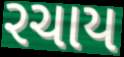
રચાય